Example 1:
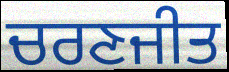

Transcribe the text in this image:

ਚਰਣਜੀਤ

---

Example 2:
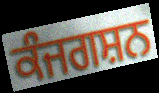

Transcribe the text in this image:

ਕੰਜਗਸ਼ਨ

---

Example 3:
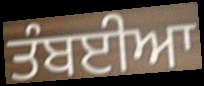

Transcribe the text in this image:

ਤੰਬਈਆ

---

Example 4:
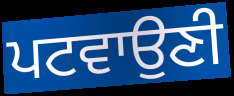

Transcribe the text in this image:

ਪਟਵਾਉਣੀ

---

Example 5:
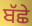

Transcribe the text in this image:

ਬੱਛੇ